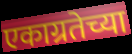
एकाग्रतेच्या